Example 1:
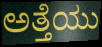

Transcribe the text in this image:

ಅತ್ತೆಯು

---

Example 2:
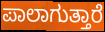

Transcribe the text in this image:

ಪಾಲಾಗುತ್ತಾರೆ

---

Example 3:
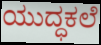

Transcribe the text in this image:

ಯುದ್ಧಕಲೆ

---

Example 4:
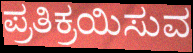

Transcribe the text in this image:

ಪ್ರತಿಕ್ರಯಿಸುವ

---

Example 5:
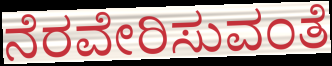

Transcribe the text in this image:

ನೆರವೇರಿಸುವಂತೆ